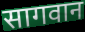
सागवान